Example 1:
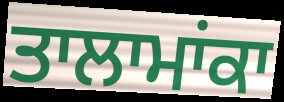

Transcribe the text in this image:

ਤਾਲਾਮਾਂਕਾ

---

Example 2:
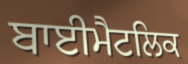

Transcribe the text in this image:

ਬਾਈਮੈਟਲਿਕ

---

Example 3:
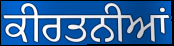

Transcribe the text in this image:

ਕੀਰਤਨੀਆਂ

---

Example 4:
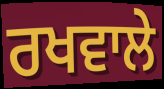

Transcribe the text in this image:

ਰਖਵਾਲੇ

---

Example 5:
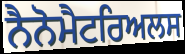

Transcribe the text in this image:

ਨੈਨੋਮੈਟਰਿਅਲਸ